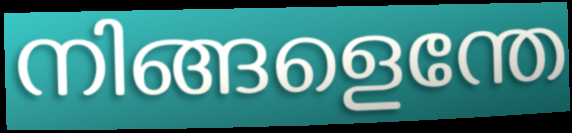
നിങ്ങളെന്തേ